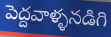
పెద్దవాళ్ళనడిగి